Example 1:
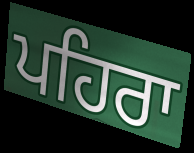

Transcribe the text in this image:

ਪਹਿਰਾ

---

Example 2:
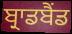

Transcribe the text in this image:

ਬ੍ਰਾਡਬੈਂਡ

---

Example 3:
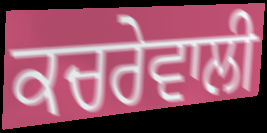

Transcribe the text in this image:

ਕਚਰੇਵਾਲੀ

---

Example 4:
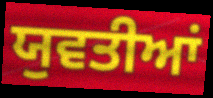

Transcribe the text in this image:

ਯੁਵਤੀਆਂ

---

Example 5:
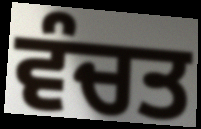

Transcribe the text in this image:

ਵੰਚਤ